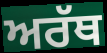
ਅਰੱਥ